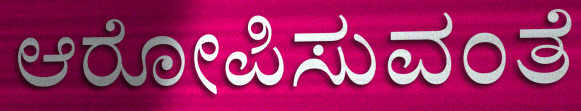
ಆರೋಪಿಸುವಂತೆ